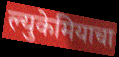
ल्युकेमियाचा